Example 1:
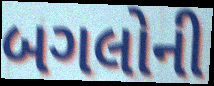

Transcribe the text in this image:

બગલોની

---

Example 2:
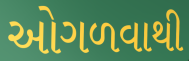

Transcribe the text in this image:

ઓગળવાથી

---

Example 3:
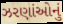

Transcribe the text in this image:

ઝરણાંઓનું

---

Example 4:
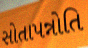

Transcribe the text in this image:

સોતાપન્નોતિ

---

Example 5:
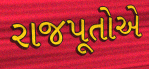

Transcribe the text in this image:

રાજપૂતોએ